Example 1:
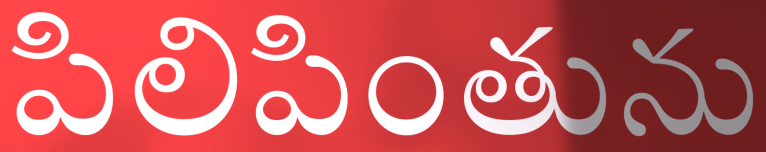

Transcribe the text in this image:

పిలిపింతును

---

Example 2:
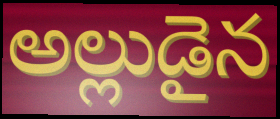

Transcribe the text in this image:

అల్లుడైన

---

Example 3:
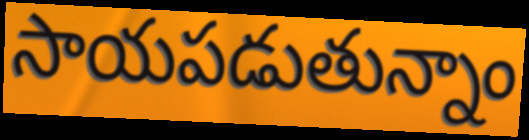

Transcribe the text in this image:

సాయపడుతున్నాం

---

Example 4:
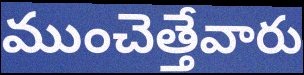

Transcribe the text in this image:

ముంచెత్తేవారు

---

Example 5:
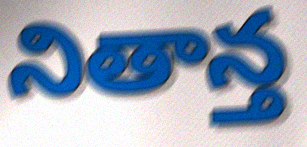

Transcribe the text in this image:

నితాన్త